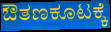
ಔತಣಕೂಟಕ್ಕೆ